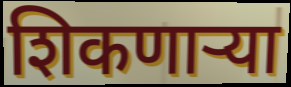
शिकणार्‍या